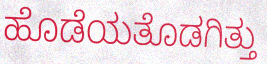
ಹೊಡೆಯತೊಡಗಿತ್ತು